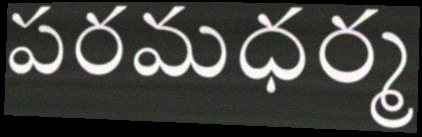
పరమధర్మ